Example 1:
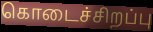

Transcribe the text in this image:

கொடைச்சிறப்பு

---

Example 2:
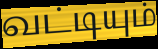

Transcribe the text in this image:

வட்டியும்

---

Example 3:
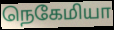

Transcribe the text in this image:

நெகேமியா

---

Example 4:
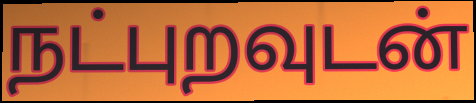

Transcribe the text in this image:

நட்புறவுடன்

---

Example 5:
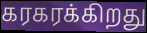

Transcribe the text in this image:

கரகரக்கிறது